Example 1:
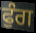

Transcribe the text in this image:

ਫੁੰਗ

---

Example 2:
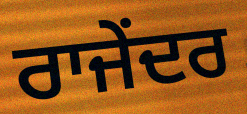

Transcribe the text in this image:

ਰਾਜੇਂਦਰ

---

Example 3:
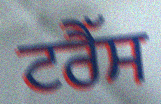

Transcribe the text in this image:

ਟਰੈੱਸ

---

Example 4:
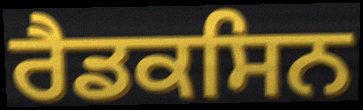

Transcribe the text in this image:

ਰੈਡਕਸਿਨ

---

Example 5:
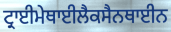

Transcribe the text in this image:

ਟ੍ਰਾਈਮੇਥਾਈਲੈਕਸੈਨਥਾਈਨ